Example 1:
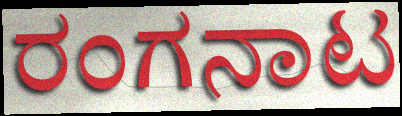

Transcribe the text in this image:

ರಂಗನಾಟ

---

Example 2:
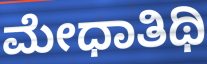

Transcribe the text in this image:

ಮೇಧಾತಿಥಿ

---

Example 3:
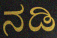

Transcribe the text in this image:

ನಡಿ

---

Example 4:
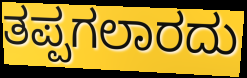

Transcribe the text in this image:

ತಪ್ಪಗಲಾರದು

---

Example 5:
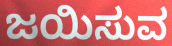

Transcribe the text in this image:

ಜಯಿಸುವ